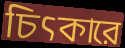
চিৎকারে